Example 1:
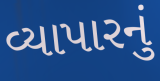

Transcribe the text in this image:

વ્યાપારનું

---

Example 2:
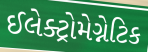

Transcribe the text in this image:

ઈલેક્ટ્રોમેગ્નેટિક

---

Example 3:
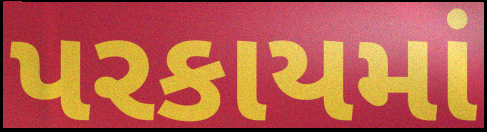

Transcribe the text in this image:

પરકાયમાં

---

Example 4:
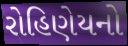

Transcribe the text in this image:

રોહિણેયનો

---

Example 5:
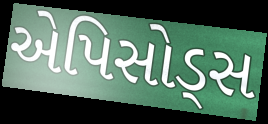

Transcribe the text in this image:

એપિસોડ્સ